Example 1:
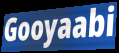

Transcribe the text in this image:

Gooyaabi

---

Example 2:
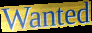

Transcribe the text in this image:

Wanted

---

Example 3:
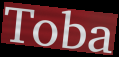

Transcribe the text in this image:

Toba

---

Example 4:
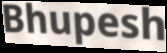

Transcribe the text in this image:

Bhupesh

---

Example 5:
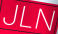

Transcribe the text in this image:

JLN